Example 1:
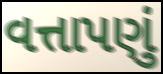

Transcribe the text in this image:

વત્તાપણું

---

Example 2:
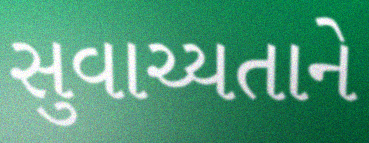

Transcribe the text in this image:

સુવાચ્યતાને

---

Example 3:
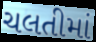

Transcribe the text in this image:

ચલતીમાં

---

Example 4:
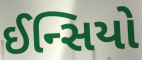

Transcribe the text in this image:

ઈન્સિયો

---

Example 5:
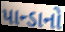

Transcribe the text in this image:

પાન્ડાનો